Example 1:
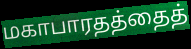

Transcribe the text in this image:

மகாபாரதத்தைத்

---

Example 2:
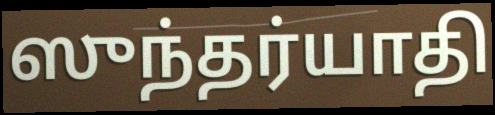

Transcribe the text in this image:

ஸுந்தர்யாதி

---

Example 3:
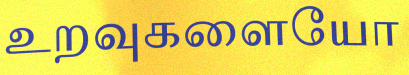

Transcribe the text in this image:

உறவுகளையோ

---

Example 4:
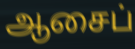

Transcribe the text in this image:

ஆசைப்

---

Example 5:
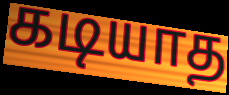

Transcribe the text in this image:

கடியாத